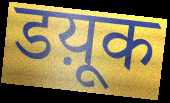
डय़ूक